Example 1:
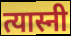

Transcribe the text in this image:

त्यास्नी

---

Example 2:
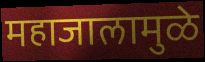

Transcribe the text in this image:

महाजालामुळे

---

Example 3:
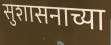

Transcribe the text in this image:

सुशासनाच्या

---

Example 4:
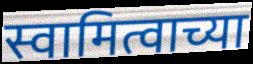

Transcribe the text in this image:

स्वामित्वाच्या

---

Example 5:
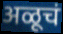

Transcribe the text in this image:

अळूचं